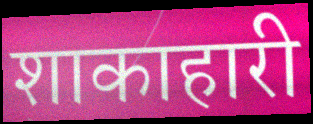
शाकाहारी